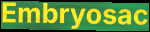
Embryosac